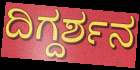
ದಿಗ್ದರ್ಶನ